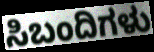
ಸಿಬಂದಿಗಳು